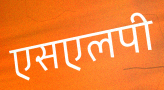
एसएलपी